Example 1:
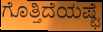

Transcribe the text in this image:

ಗೊತ್ತಿದೆಯಷ್ಟೆ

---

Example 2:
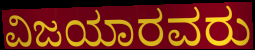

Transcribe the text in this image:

ವಿಜಯಾರವರು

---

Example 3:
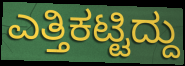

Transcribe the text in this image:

ಎತ್ತಿಕಟ್ಟಿದ್ದು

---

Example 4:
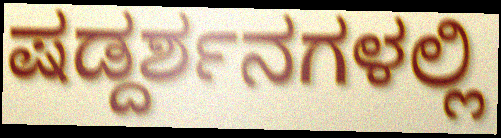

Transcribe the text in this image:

ಷಡ್ದರ್ಶನಗಳಲ್ಲಿ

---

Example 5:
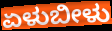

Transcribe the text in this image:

ಏಳುಬೀಳು